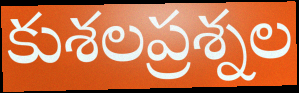
కుశలప్రశ్నల